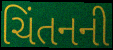
ચિંતનની